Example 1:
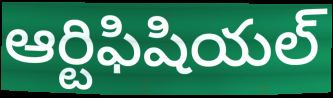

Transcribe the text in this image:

ఆర్టిఫిషియల్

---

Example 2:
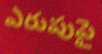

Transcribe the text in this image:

ఎరుపుపై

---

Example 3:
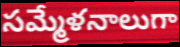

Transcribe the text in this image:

సమ్మేళనాలుగా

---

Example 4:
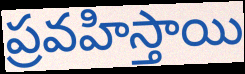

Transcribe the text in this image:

ప్రవహిస్తాయి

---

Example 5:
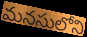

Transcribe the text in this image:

మనసులోని